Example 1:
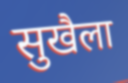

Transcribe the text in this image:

सुखैला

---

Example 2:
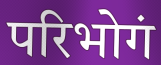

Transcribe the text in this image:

परिभोगं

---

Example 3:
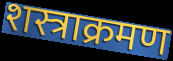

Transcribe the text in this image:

शस्त्राक्रमण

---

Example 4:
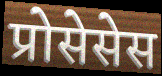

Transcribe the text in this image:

प्रोसेसेस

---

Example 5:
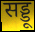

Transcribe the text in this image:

सड्डू